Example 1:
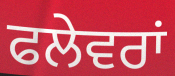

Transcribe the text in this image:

ਫਲੇਵਰਾਂ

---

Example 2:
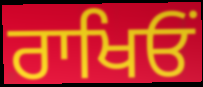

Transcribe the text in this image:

ਰਾਖਿਓਂ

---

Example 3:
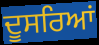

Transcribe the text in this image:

ਦੂਸਰਿਆਂ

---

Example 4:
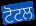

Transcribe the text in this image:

ਟੋਟਲ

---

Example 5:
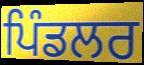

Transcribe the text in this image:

ਪਿੰਡਲਰ